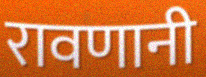
रावणानी